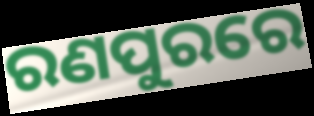
ରଣପୁରରେ